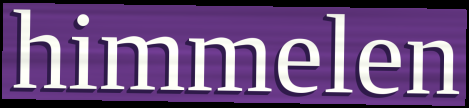
himmelen